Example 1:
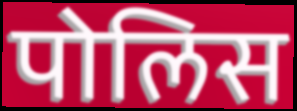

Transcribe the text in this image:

पोलिस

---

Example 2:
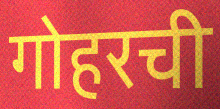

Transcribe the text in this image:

गोहरची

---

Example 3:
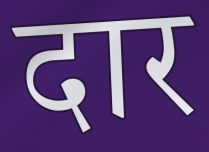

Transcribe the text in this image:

दार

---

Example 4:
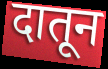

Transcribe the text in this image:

दातून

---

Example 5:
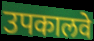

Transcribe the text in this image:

उपकालवे